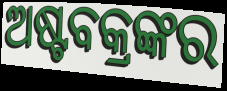
ଅଷ୍ଟବକ୍ରଙ୍କର